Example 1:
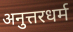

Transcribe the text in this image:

अनुत्तरधर्म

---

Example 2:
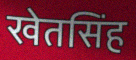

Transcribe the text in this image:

खेतसिंह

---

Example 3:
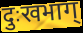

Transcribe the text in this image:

दुःखभाग्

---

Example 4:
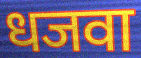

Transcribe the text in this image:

धजवा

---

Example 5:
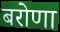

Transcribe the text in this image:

बरोणा